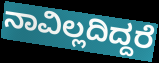
ನಾವಿಲ್ಲದಿದ್ದರೆ